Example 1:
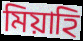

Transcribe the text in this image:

মিয়াহি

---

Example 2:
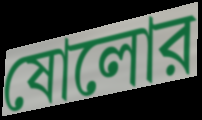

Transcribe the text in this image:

ষোলোর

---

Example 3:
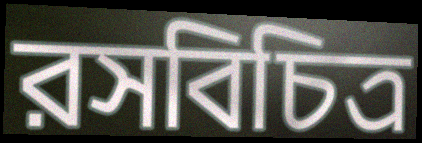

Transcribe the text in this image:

রসবিচিত্র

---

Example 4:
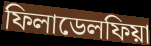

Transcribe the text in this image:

ফিলাডেলফিয়া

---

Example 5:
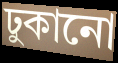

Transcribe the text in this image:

ঢুকানো